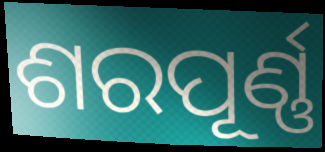
ଶରପୂର୍ଣ୍ଣ